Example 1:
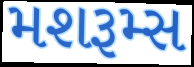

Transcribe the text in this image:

મશરૂમ્સ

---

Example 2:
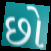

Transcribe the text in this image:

છો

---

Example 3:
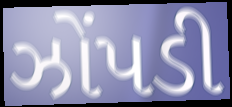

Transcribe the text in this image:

ઝોંપડી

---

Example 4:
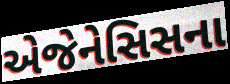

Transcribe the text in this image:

એજેનેસિસના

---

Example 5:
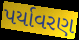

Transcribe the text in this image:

પર્યાવરણ